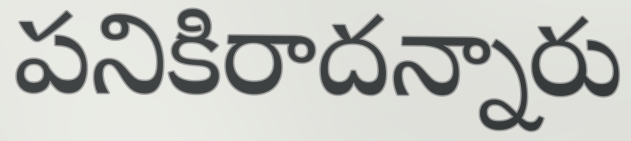
పనికిరాదన్నారు